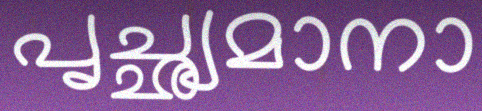
പൃച്ഛ്യമാനാ